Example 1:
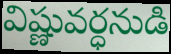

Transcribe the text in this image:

విష్ణువర్ధనుడి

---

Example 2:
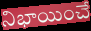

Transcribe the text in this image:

నిభాయించే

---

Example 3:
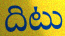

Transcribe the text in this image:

దిటు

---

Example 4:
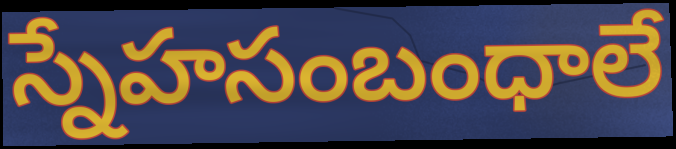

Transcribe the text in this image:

స్నేహసంబంధాలే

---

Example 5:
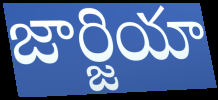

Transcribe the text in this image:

జార్జియా